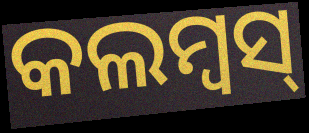
କଲମ୍ବସ୍